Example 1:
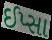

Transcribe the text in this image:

ઈપ્સા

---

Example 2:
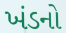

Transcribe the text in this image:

ખંડનો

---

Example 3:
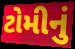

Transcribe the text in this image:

ટોમીનું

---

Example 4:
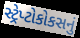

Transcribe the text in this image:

સ્ટ્રેપ્ટોકોકસનું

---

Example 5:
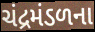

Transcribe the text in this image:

ચંદ્રમંડળના